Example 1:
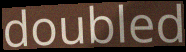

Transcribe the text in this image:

doubled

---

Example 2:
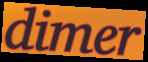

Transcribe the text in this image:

dimer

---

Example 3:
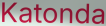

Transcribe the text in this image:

Katonda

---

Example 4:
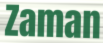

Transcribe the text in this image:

Zaman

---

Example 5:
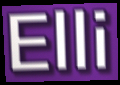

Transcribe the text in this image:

Elli